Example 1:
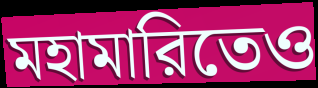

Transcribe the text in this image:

মহামারিতেও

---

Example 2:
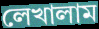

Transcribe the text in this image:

লেখালাম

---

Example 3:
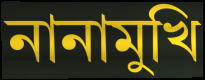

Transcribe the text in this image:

নানামুখি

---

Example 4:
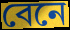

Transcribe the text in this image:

বেনে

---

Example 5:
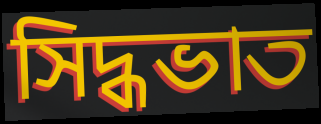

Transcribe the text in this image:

সিদ্ধভাত